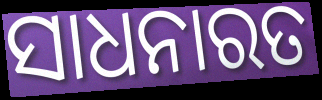
ସାଧନାରତ